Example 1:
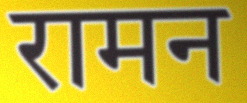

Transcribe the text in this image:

रामन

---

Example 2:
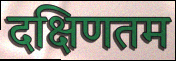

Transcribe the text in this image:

दक्षिणतम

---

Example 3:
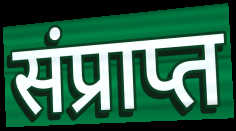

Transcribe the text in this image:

संप्राप्त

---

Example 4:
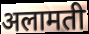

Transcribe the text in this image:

अलामती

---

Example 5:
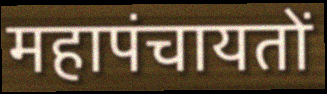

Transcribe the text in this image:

महापंचायतों